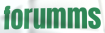
forumms